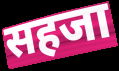
सहजा